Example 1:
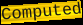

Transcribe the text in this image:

Computed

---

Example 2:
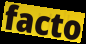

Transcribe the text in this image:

facto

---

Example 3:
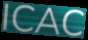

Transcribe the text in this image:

ICAC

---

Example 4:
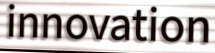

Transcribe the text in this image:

innovation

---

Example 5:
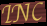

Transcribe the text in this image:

INC